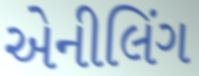
એનીલિંગ